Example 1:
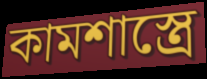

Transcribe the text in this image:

কামশাস্ত্রে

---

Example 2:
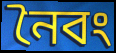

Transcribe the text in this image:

নৈবং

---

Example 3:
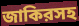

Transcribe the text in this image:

জাকিরসহ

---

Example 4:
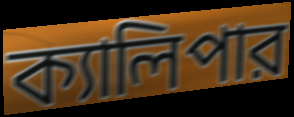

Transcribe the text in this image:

ক্যালিপার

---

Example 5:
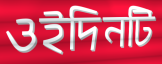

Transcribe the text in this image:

ওইদিনটি